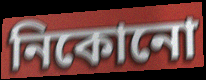
নিকোনো